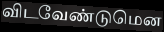
விடவேண்டுமென